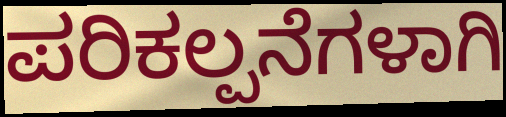
ಪರಿಕಲ್ಪನೆಗಳಾಗಿ